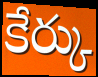
కేర్కు